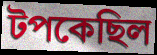
টপকেছিল